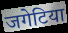
जगेटिया